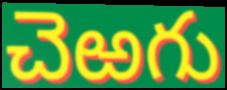
చెఱగు